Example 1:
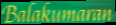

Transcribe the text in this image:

Balakumaran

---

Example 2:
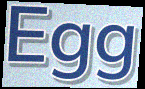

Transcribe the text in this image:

Egg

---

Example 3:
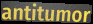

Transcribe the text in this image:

antitumor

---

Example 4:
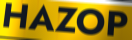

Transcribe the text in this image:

HAZOP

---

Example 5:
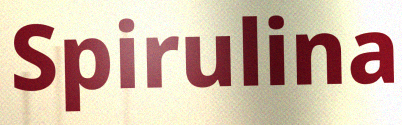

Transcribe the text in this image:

Spirulina